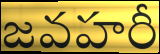
జవహరీ